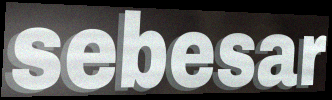
sebesar